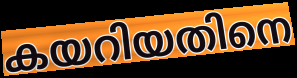
കയറിയതിനെ